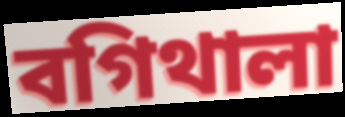
বগিথালা